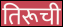
तिरूची